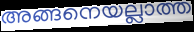
അങ്ങനെയല്ലാത്ത